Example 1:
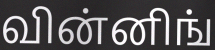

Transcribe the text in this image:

வின்னிங்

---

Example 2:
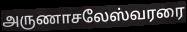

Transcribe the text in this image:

அருணாசலேஸ்வரரை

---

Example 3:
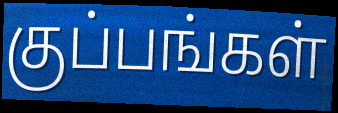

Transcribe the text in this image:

குப்பங்கள்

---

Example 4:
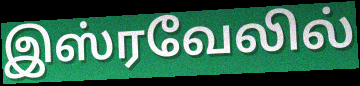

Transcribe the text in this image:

இஸ்ரவேலில்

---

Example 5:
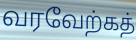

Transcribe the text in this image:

வரவேற்கத்